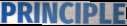
PRINCIPLE